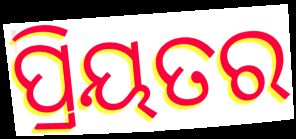
ପ୍ରିୟତର